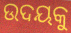
ଉଦୟକୁ